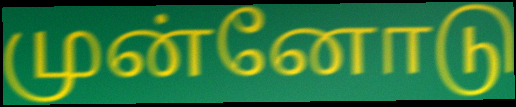
முன்னோடு